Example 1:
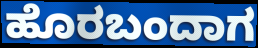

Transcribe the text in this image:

ಹೊರಬಂದಾಗ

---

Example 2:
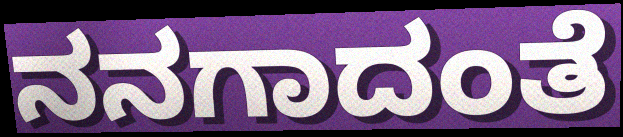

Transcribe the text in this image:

ನನಗಾದಂತೆ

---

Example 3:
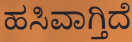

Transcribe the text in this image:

ಹಸಿವಾಗ್ತಿದೆ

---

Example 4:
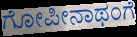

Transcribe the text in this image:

ಗೋಪೀನಾಥಂಗೆ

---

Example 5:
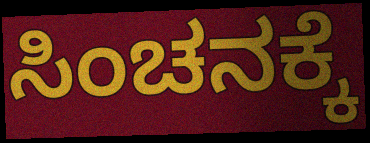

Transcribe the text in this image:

ಸಿಂಚನಕ್ಕೆ